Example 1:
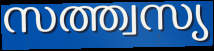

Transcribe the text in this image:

സത്ത്വസ്യ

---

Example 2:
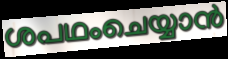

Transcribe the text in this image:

ശപഥംചെയ്യാൻ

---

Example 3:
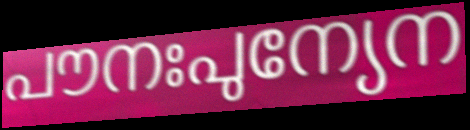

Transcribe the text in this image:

പൗനഃപുന്യേന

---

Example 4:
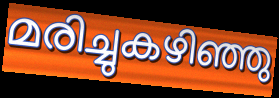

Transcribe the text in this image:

മരിച്ചുകഴിഞ്ഞു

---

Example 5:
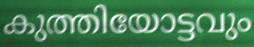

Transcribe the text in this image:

കുത്തിയോട്ടവും